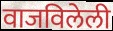
वाजविलेली